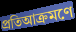
প্রতিআক্রমণে